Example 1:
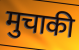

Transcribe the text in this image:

मुचाकी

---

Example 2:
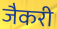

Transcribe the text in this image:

जैकरी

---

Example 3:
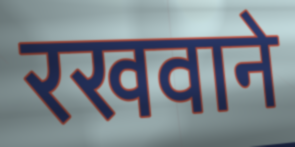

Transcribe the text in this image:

रखवाने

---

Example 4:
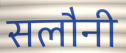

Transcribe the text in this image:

सलौनी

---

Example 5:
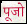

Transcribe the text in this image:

पूजो